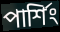
পার্শিং